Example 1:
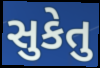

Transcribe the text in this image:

સુકેતુ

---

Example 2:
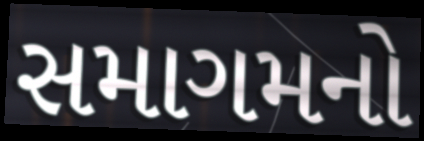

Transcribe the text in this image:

સમાગમનો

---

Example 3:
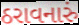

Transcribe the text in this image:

ઠરાવનારું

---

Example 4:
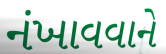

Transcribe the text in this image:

નંખાવવાને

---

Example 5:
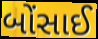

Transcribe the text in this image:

બોંસાઈ